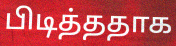
பிடித்ததாக